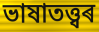
ভাষাতত্ত্বৰ